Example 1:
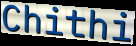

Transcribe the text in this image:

Chithi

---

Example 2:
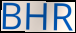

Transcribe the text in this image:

BHR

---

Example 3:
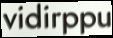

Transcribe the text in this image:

vidirppu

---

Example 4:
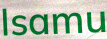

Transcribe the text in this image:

Isamu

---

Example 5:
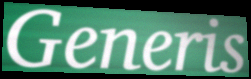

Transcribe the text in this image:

Generis